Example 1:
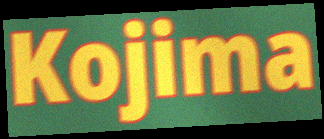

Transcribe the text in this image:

Kojima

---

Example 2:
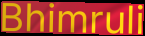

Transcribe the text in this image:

Bhimruli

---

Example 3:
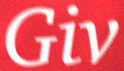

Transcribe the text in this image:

Giv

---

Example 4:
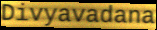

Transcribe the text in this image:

Divyavadana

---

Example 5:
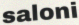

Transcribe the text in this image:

saloni